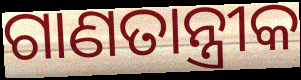
ଗାଣତାନ୍ତ୍ରୀକ